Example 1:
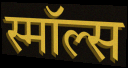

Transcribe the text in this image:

स्मॉल्स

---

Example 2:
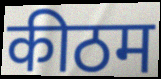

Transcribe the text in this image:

कीठम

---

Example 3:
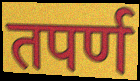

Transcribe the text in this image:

तपर्ण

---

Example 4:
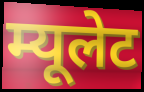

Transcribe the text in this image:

म्यूलेट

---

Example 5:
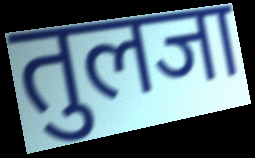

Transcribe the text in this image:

तुलजा